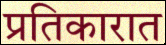
प्रतिकारात